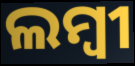
ଲମ୍ବୀ